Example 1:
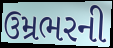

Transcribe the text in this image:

ઉમ્રભરની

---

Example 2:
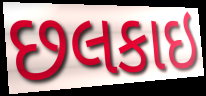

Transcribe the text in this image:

છલકાઇ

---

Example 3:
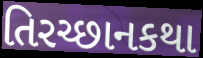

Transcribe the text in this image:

તિરચ્છાનકથા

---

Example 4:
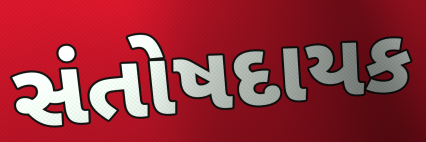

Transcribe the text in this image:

સંતોષદાયક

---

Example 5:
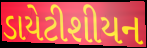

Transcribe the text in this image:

ડાયેટીશીયન